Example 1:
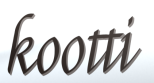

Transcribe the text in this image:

kootti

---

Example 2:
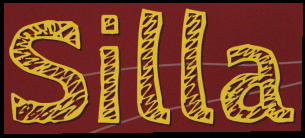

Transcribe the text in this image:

Silla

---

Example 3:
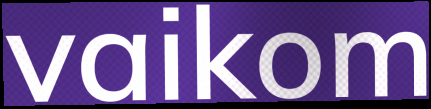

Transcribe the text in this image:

vaikom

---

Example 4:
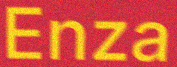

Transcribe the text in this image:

Enza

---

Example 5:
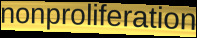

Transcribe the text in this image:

nonproliferation